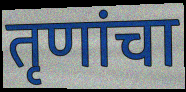
तृणांचा